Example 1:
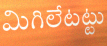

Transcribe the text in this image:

మిగిలేటట్టు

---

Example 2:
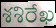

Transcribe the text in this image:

శశిరేఖ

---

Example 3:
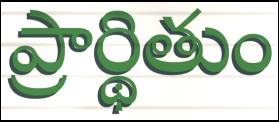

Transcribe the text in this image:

ప్రార్థితుం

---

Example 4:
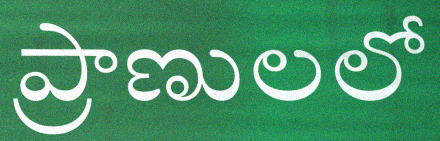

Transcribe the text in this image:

ప్రాణులలో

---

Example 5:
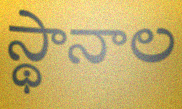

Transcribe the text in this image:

స్థానాల